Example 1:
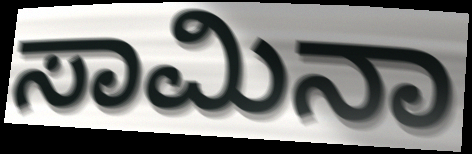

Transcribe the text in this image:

ಸಾಮಿನಾ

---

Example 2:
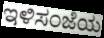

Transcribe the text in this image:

ಇಳಿಸಂಜೆಯ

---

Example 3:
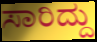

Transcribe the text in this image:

ಸಾರಿದ್ದು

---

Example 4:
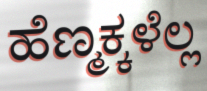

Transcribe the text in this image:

ಹೆಣ್ಮಕ್ಕಳೆಲ್ಲ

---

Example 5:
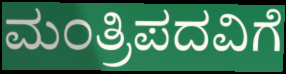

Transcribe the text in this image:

ಮಂತ್ರಿಪದವಿಗೆ